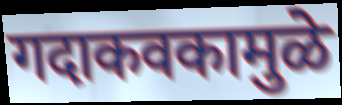
गदाकवकामुळे